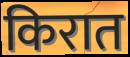
किरात